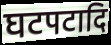
घटपटादि